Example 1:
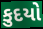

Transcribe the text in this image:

કુદયો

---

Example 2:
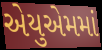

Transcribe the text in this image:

એયુએમમાં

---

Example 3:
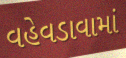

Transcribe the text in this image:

વહેવડાવામાં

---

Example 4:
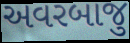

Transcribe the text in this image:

અવરબાજુ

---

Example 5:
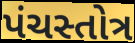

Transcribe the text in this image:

પંચસ્તોત્ર